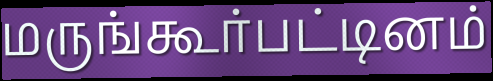
மருங்கூர்பட்டினம்